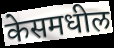
केसमधील